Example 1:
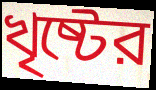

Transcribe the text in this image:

খৃষ্টের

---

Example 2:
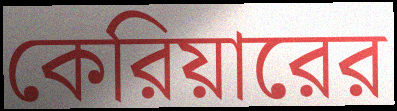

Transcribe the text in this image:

কেরিয়ারের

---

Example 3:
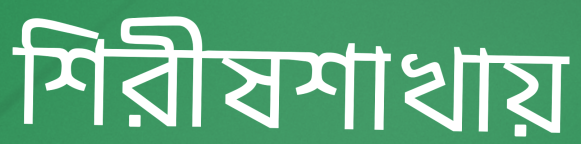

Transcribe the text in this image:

শিরীষশাখায়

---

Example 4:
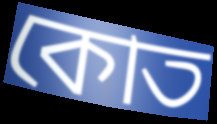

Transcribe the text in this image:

কোত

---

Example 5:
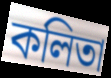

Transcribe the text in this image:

কলিতা